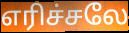
எரிச்சலே